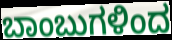
ಬಾಂಬುಗಳಿಂದ